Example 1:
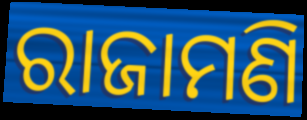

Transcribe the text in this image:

ରାଜାମଣି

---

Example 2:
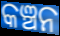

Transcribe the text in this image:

କଞ୍ଚନ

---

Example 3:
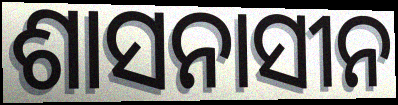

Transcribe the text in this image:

ଶାସନାସୀନ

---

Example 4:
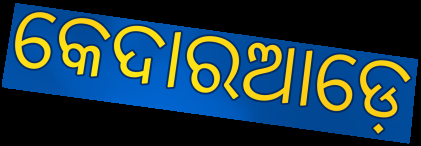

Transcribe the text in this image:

କେଦାରଆଡ଼େ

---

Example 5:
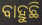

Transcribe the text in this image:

ବାହୁଛି